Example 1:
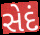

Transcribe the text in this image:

સેદં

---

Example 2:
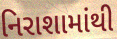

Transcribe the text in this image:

નિરાશામાંથી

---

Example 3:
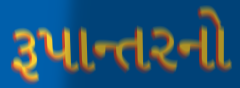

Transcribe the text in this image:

રૂપાન્તરનો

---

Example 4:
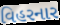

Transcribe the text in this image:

વિહરનાર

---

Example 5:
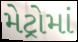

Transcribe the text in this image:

મેટ્રોમાં